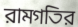
রামগতির